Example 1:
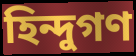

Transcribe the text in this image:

হিন্দুগণ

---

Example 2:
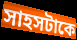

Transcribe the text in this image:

সাহসটাকে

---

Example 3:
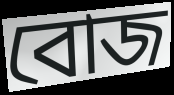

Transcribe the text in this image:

বোজ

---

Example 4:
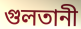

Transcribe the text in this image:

গুলতানী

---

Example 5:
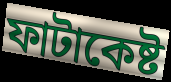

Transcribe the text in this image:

ফাটাকেষ্ট